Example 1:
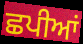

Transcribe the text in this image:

ਛਪੀਆਂ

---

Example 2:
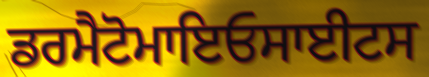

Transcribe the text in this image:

ਡਰਮੈਟੋਮਾਇਓਸਾਈਟਸ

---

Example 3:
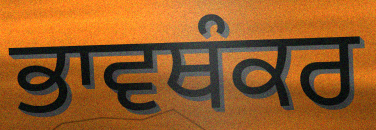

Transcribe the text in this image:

ਭਾਵਥੰਕਰ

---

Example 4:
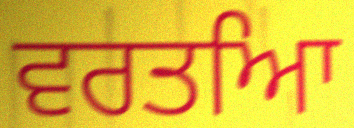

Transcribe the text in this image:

ਵਰਤਆਿ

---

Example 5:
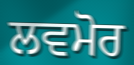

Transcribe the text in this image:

ਲਵਮੋਰ